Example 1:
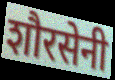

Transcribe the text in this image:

शौरसेनी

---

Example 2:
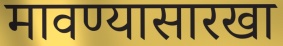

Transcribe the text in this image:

मावण्यासारखा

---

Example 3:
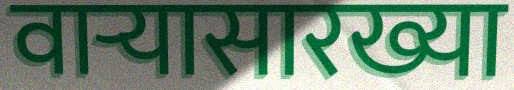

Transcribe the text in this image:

वाऱ्यासारख्या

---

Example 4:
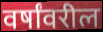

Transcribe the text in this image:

वर्षांवरील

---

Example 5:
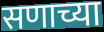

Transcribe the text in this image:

सणाच्या